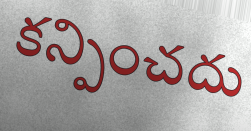
కన్పించదు